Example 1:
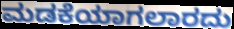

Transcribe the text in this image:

ಮಡಕೆಯಾಗಲಾರದು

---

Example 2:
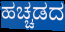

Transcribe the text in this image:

ಹಚ್ಚಡದ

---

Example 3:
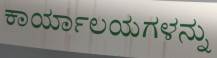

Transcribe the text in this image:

ಕಾರ್ಯಾಲಯಗಳನ್ನು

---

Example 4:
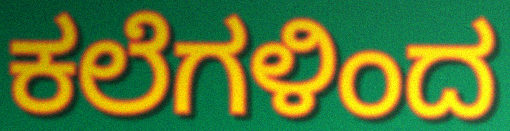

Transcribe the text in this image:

ಕಲೆಗಳಿಂದ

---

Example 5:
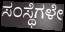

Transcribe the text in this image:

ಸಂಸ್ಥೆಗಳೇ